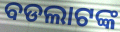
ବଡଲାଟଙ୍କ